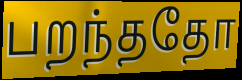
பறந்ததோ